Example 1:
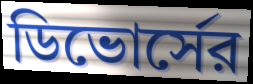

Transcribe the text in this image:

ডিভোর্সের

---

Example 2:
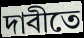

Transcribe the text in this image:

দাবীতে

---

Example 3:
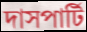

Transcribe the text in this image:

দাসপার্টি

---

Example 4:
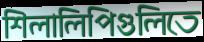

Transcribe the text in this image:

শিলালিপিগুলিতে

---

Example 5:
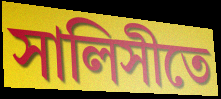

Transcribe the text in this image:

সালিসীতে